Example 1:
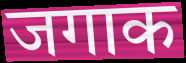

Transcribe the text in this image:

जगाक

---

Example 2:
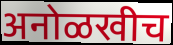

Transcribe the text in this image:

अनोळखीच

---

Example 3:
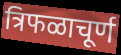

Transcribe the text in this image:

त्रिफळाचूर्ण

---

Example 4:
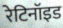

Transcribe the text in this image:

रेटिनॉइड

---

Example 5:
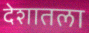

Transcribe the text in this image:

देशातला